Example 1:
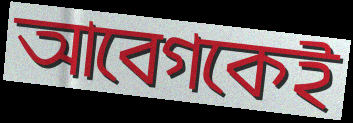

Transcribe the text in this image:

আবেগকেই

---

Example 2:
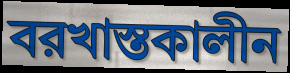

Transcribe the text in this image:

বরখাস্তকালীন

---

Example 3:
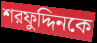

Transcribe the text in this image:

শরফুদ্দিনকে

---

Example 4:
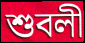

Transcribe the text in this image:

শুবলী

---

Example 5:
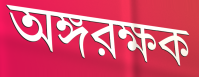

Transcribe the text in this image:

অঙ্গরক্ষক